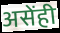
असेंही